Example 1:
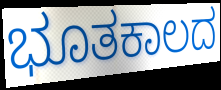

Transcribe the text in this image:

ಭೂತಕಾಲದ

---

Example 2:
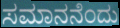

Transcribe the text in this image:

ಸಮಾನನೆಂದು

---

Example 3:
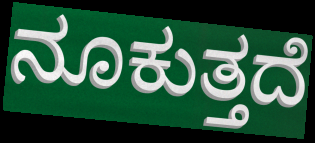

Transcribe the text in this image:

ನೂಕುತ್ತದೆ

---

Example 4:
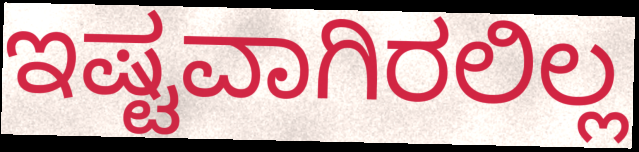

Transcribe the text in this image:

ಇಷ್ಟವಾಗಿರಲಿಲ್ಲ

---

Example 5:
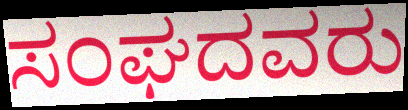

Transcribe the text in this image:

ಸಂಘದವರು